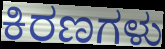
ಕಿರಣಗಳು